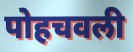
पोहचवली